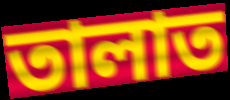
তালাত